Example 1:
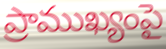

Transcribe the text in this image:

ప్రాముఖ్యంపై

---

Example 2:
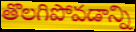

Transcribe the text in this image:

తొలగిపోవడాన్ని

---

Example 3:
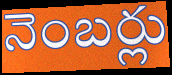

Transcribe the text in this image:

నెంబర్లు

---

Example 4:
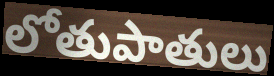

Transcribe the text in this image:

లోతుపాతులు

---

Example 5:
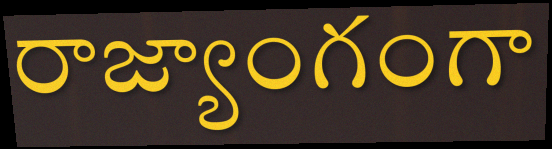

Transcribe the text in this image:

రాజ్యాంగంగా